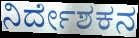
ನಿರ್ದೇಶಕನ